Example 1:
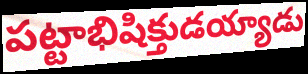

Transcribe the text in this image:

పట్టాభిషిక్తుడయ్యాడు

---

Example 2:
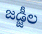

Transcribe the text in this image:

జడ్జీల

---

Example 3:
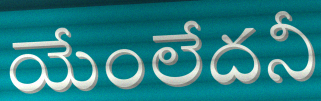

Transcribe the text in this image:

యేంలేదనీ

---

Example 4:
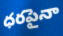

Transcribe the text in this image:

ధరపైనా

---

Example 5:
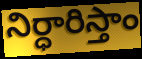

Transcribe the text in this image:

నిర్ధారిస్తాం